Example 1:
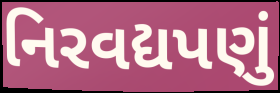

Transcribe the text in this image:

નિરવદ્યપણું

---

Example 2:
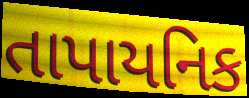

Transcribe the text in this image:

તાપાયનિક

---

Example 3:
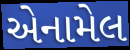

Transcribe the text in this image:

એનામેલ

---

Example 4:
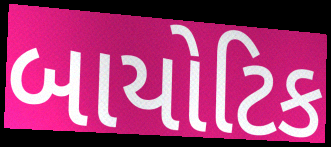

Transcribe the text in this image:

બાયોટિક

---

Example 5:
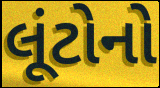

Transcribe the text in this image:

લૂંટોનો